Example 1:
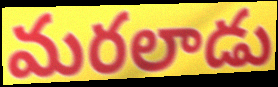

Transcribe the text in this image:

మరలాడు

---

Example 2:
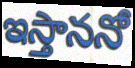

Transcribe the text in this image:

ఇస్తాననో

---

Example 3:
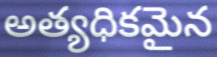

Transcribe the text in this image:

అత్యధికమైన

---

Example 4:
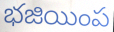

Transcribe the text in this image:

భజియింప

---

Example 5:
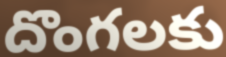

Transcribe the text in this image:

దొంగలకు